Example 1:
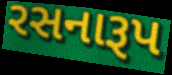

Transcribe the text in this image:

રસનારૂપ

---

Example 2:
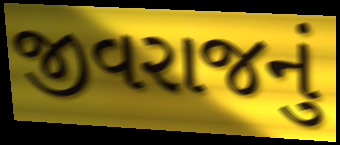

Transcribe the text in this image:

જીવરાજનું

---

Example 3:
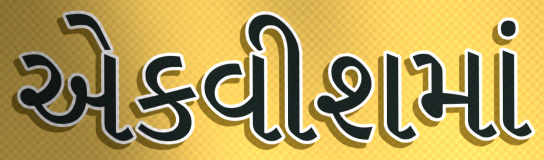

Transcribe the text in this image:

એકવીશમાં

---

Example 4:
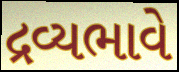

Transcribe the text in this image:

દ્રવ્યભાવે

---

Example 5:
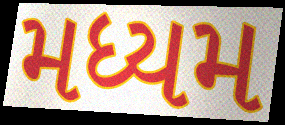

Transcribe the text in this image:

મધ્યમ